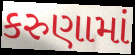
કરુણામાં